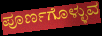
ಪೂರ್ಣಗೊಳ್ಳುವ